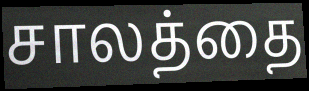
சாலத்தை